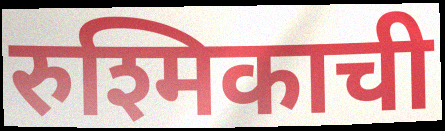
रुश्मिकाची